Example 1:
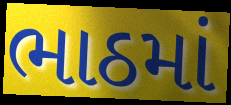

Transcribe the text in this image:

ભાઠમાં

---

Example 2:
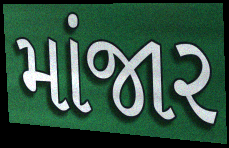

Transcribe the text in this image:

માંજાર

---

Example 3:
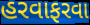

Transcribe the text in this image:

હરવાફરવા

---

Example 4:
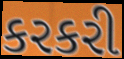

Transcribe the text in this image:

કરકરી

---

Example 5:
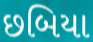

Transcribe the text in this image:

છબિયા